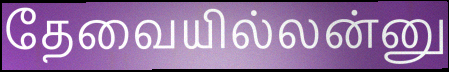
தேவையில்லன்னு